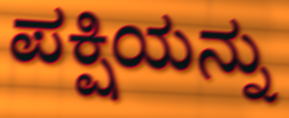
ಪಕ್ಷಿಯನ್ನು